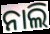
ନାଲି